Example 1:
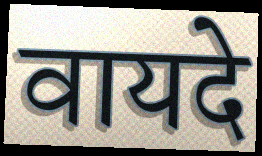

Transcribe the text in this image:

वायदे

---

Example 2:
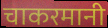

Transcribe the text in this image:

चाकरमानी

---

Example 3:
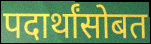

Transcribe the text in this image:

पदार्थांसोबत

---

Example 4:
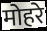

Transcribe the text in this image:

मोहरे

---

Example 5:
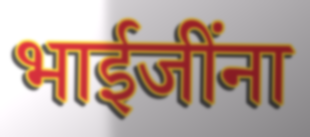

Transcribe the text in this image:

भाईजींना